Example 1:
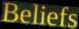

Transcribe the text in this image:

Beliefs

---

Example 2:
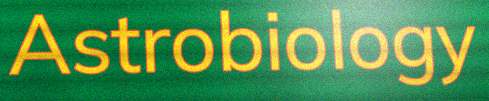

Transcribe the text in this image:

Astrobiology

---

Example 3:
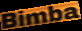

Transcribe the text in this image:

Bimba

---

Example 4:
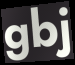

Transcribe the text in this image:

gbj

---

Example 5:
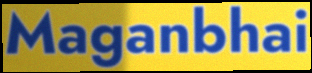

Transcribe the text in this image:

Maganbhai